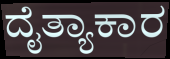
ದೈತ್ಯಾಕಾರ